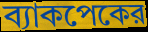
ব্যাকপেকের